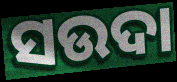
ସଉଦା